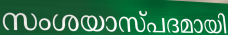
സംശയാസ്പദമായി